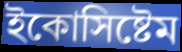
ইকোসিষ্টেম